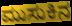
ಮುಸುಕಿನ